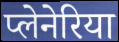
प्लेनेरिया